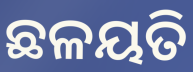
ଛଳୟତି